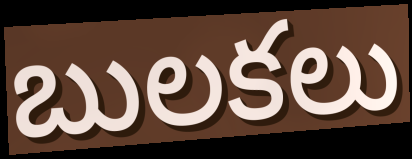
బులకలు